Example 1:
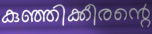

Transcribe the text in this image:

കുഞ്ഞിക്കീരന്റെ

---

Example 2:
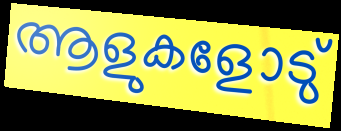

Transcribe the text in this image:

ആളുകളോടു്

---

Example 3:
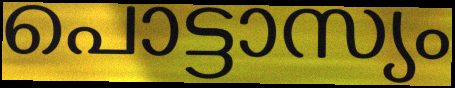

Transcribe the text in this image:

പൊട്ടാസ്യം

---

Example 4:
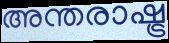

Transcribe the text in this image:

അന്തരാഷ്ട്ര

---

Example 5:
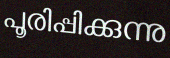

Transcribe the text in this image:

പൂരിപ്പിക്കുന്നു